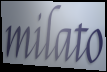
milato